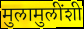
मुलामुलींशी